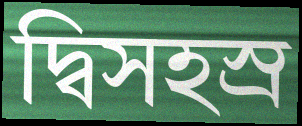
দ্বিসহস্র